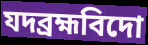
যদব্রহ্মবিদো